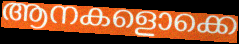
ആനകളൊക്കെ